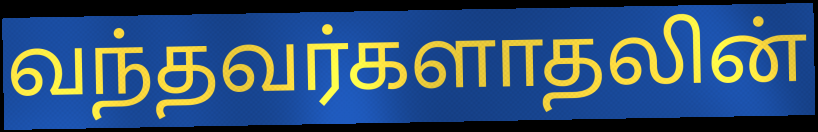
வந்தவர்களாதலின்